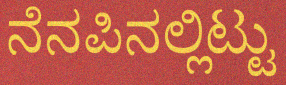
ನೆನಪಿನಲ್ಲಿಟ್ಟು